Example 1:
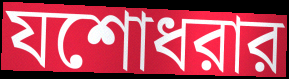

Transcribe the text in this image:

যশোধরার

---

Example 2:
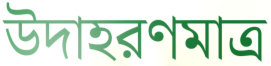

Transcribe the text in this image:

উদাহরণমাত্র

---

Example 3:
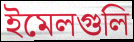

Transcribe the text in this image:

ইমেলগুলি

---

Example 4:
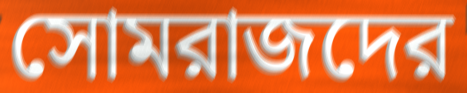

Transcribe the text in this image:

সোমরাজদের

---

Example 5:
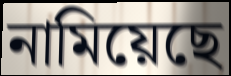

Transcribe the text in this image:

নামিয়েছে